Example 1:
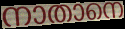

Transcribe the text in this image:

നാതാനെ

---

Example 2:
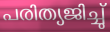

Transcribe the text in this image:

പരിത്യജിച്ചു്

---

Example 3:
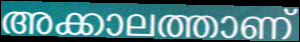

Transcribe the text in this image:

അക്കാലത്താണ്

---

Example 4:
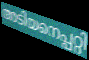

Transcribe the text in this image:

അടിയനെപ്പറ്റി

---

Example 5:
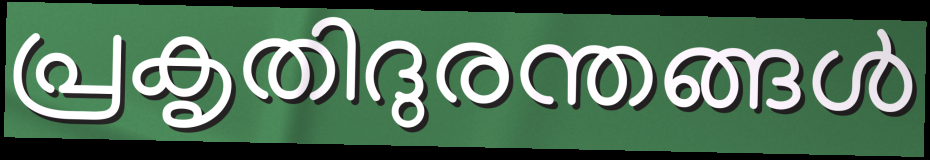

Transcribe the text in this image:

പ്രകൃതിദുരന്തങ്ങൾ